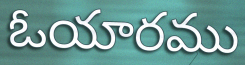
ఓయారము